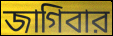
জাগিবার